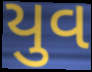
યુવ